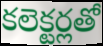
కలెక్టర్లతో